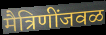
मैत्रिणींजवळ